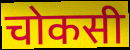
चोकसी